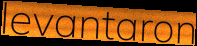
levantaron